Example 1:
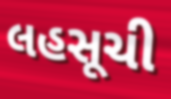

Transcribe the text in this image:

લહસૂચી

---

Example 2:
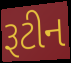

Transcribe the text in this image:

રૂટીન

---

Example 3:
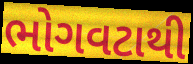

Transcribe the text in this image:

ભોગવટાથી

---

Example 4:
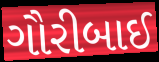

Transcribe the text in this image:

ગૌરીબાઈ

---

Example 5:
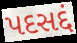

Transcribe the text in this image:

પદસદ્દં